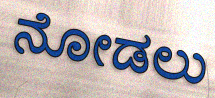
ನೋಡಲು